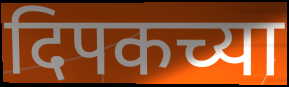
दिपकच्या